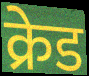
क्रेड